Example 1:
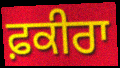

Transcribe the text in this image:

ਫ਼ਕੀਰਾ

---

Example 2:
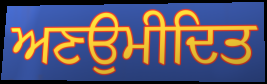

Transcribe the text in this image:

ਅਣਉਮੀਦਿਤ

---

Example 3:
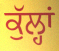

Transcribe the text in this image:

ਕੁੱਲ੍ਹਾਂ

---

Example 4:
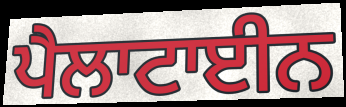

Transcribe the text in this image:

ਪੈਲਾਟਾਈਨ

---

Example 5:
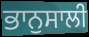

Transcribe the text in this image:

ਭਾਨੁਸਾਲੀ